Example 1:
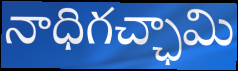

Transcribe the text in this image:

నాధిగచ్ఛామి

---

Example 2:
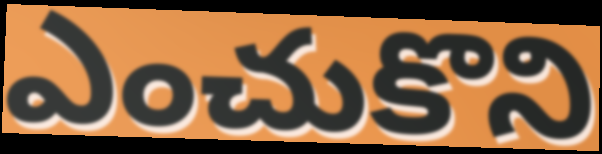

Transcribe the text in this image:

ఎంచుకొని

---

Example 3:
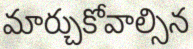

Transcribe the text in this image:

మార్చుకోవాల్సిన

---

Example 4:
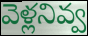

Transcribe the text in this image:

వెళ్లనివ్వ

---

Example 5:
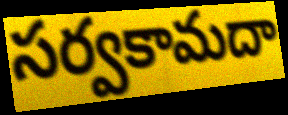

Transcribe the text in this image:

సర్వకామదా